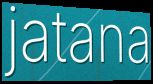
jatana